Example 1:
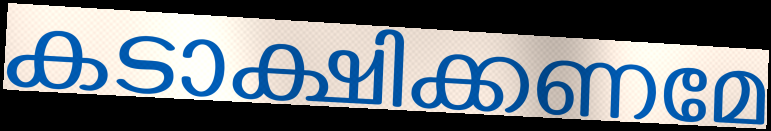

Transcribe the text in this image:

കടാക്ഷിക്കണമേ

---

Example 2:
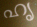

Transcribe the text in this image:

ഹൃ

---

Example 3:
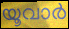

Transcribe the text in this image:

യൂവാർ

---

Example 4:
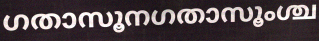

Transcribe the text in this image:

ഗതാസൂനഗതാസൂംശ്ച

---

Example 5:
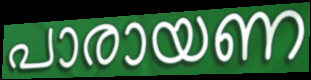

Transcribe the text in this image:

പാരായണ